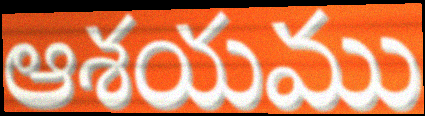
ఆశయము